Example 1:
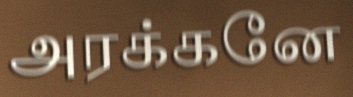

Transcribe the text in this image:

அரக்கனே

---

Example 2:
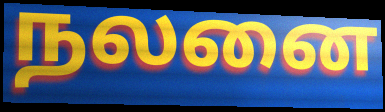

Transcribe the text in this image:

நலனை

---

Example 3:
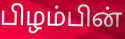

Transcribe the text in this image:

பிழம்பின்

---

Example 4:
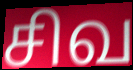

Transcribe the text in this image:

சிவ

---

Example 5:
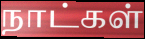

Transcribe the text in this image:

நாட்கள்